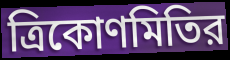
ত্রিকোণমিতির